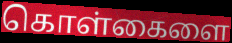
கொள்கைளை